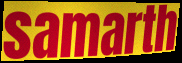
samarth